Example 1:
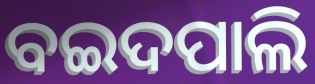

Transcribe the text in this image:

ବଇଦପାଲି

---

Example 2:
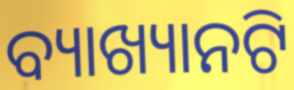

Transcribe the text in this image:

ବ୍ୟାଖ୍ୟାନଟି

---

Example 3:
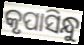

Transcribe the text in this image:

କୃପାସିନ୍ଧୁ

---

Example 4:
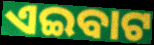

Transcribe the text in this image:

ଏଇବାଟ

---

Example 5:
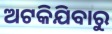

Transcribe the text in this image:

ଅଟକିଯିବାରୁ